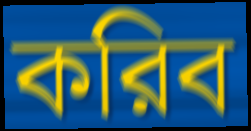
করিব